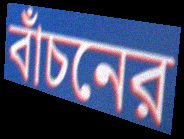
বাঁচনের